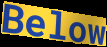
Below